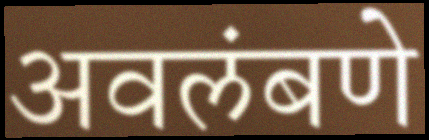
अवलंबणे